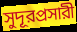
সুদূরপ্রসারী